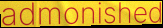
admonished